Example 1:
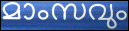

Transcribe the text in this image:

മാംസവും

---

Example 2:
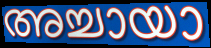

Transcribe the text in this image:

അച്ചായാ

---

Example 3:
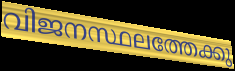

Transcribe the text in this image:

വിജനസ്ഥലത്തേക്കു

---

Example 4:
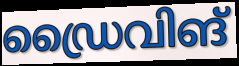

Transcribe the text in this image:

ഡ്രൈവിങ്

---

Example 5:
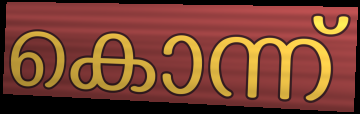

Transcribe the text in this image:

കൊന്ന്